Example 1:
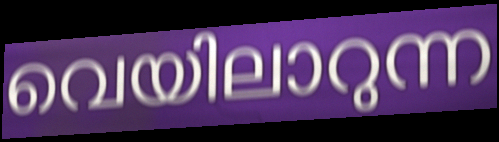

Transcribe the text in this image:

വെയിലാറുന്ന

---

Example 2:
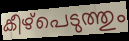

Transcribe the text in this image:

കീഴ്പെടുത്തും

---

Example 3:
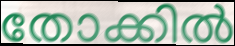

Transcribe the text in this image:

തോക്കിൽ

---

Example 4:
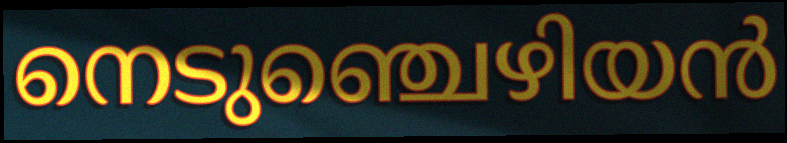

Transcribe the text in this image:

നെടുഞ്ചെഴിയൻ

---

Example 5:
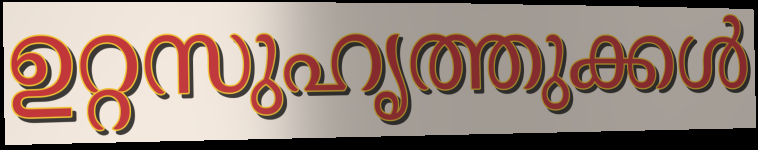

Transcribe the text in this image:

ഉറ്റസുഹൃത്തുക്കൾ